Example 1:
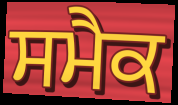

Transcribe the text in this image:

ਸਮੈਕ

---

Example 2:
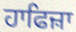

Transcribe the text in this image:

ਹਾਫਿਜ਼ਾ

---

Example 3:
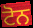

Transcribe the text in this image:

ਟੋਨ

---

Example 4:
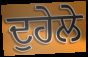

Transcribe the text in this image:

ਦੁਹੇਲੇ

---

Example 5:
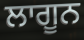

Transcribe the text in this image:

ਲਾਗੂਨ